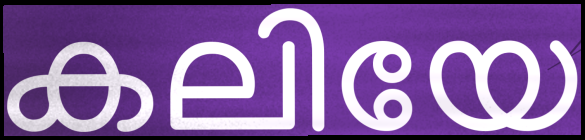
കലിയേ